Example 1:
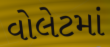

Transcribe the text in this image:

વોલેટમાં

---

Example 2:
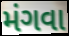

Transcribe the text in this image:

મંગવા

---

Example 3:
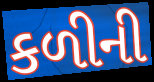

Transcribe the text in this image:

કળીની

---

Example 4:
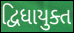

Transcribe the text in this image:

દ્વિધાયુક્ત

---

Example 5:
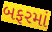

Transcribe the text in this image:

બફરમાં